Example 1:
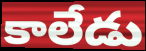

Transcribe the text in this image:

కాలేడు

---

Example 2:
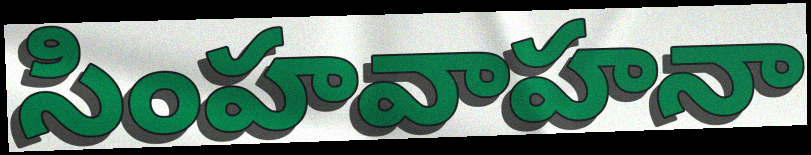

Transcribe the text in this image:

సింహవాహనా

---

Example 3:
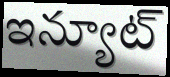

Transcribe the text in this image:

ఇన్యూట్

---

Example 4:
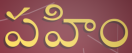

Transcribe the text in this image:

పహిం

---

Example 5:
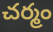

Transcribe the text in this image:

చర్మం